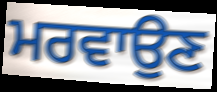
ਮਰਵਾਉਣ